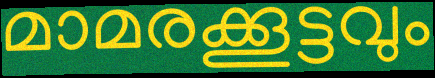
മാമരക്കൂട്ടവും